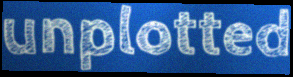
unplotted